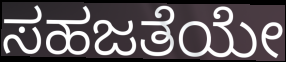
ಸಹಜತೆಯೇ